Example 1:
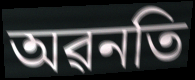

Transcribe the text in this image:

অৱনতি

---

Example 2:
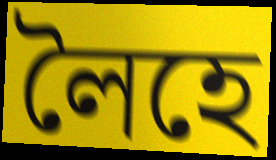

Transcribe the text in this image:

লৈহে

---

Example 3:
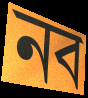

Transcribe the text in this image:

নব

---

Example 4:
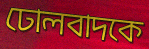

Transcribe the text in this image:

ঢোলবাদকে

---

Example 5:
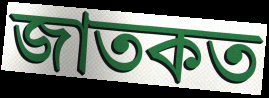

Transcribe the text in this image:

জাতকত